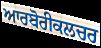
ਆਰਬੋਰੀਕਲਚਰ